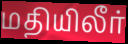
மதியிலீர்